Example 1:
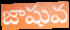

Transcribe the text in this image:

జాషువ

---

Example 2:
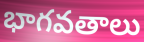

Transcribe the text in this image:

భాగవతాలు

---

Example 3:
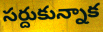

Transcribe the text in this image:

సర్దుకున్నాక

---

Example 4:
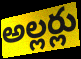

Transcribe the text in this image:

అల్లర్లు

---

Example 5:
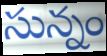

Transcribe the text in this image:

సున్నం